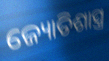
ଜ୍ୟୋତିଶାସ୍ତ୍ର